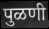
पुळणी